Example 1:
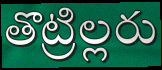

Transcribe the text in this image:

తొట్రిల్లరు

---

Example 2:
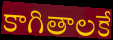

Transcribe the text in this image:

కాగితాలకే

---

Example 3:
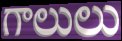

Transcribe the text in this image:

గాలులు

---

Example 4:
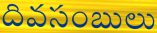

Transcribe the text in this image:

దివసంబులు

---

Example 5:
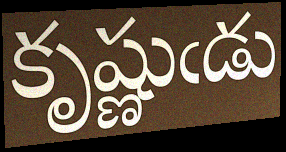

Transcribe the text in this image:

కృష్ణుఁడు